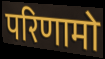
परिणामो